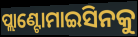
ପ୍ଲାଣ୍ଟୋମାଇସିନକୁ